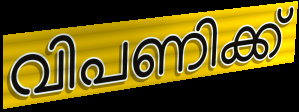
വിപണിക്ക്